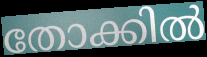
തോക്കിൽ